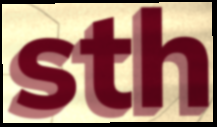
sth